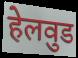
हेलवुड